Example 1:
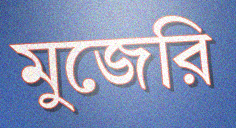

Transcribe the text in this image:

মুজেরি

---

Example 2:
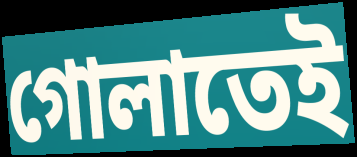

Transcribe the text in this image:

গোলাতেই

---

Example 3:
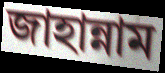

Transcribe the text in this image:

জাহান্নাম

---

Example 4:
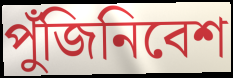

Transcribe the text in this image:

পুঁজিনিবেশ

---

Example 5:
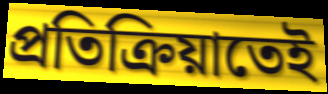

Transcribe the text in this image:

প্রতিক্রিয়াতেই